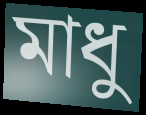
মাধু